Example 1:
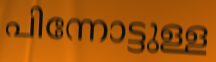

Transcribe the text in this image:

പിന്നോട്ടുള്ള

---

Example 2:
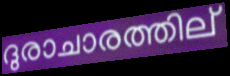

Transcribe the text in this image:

ദുരാചാരത്തില്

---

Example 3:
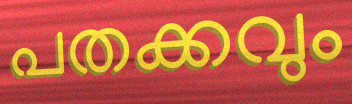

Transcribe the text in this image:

പതക്കവും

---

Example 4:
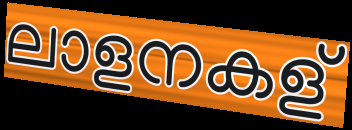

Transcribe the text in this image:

ലാളനകള്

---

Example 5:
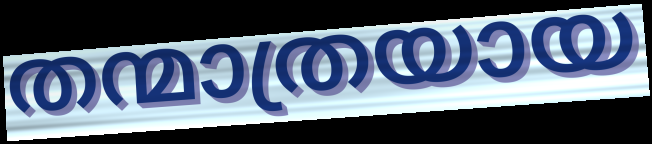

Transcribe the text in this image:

തന്മാത്രയായ